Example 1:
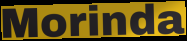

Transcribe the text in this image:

Morinda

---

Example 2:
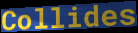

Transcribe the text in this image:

Collides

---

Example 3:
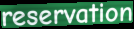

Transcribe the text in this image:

reservation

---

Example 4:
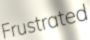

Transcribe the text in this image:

Frustrated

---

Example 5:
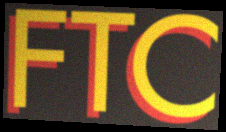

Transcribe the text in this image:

FTC